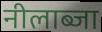
नीलाब्जा